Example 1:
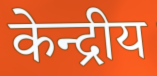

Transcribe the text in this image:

केन्द्रीय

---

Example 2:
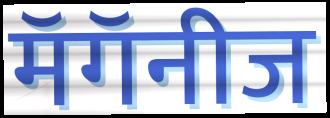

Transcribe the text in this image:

मॅगॅनीज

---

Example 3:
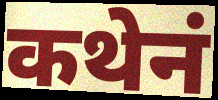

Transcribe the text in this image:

कथेनं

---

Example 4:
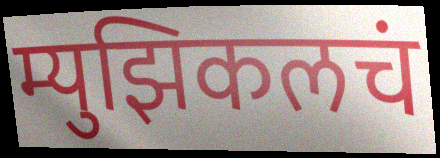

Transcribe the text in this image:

म्युझिकलचं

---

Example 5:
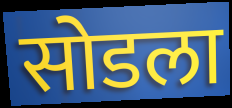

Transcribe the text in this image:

सोडला